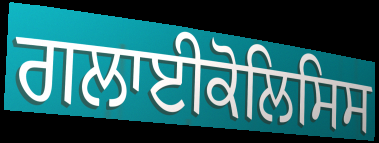
ਗਲਾਈਕੋਲਿਸਿਸ